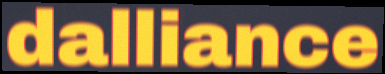
dalliance